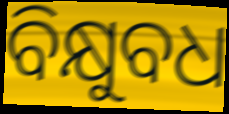
ବିକ୍ଷୁବଧ